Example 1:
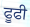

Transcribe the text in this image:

ਫੂਫੀ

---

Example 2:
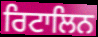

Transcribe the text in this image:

ਰਿਟਾਲਿਨ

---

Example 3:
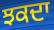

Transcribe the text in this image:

ਝਕਦਾ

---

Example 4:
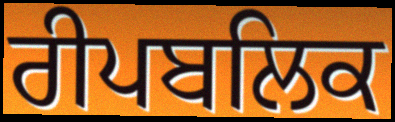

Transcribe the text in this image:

ਰੀਪਬਲਿਕ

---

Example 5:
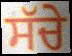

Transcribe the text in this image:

ਸੱਚੇ